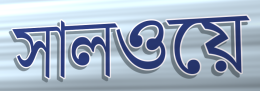
সালওয়ে